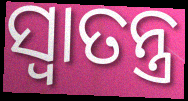
ସ୍ୱାତନ୍ତ୍ର